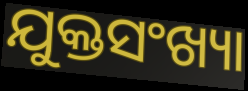
ଯୁକ୍ତସଂଖ୍ୟା